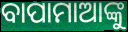
ବାପାମାଆଙ୍କୁ